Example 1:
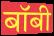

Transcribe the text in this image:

बॉबी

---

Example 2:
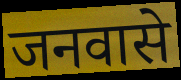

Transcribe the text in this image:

जनवासे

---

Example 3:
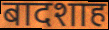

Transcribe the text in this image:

बादशाह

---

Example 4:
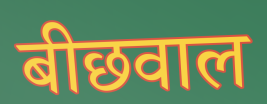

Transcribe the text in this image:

बीछवाल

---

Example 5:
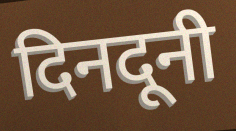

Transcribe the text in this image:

दिनदूनी